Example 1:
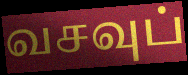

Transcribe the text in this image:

வசவுப்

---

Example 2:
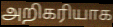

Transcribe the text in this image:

அறிகரியாக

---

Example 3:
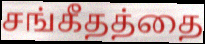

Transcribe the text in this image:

சங்கீதத்தை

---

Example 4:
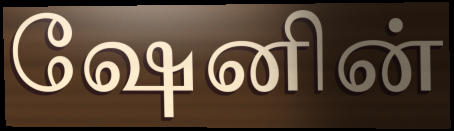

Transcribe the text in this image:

ஷேனின்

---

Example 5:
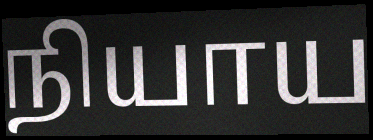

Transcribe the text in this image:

நியாய